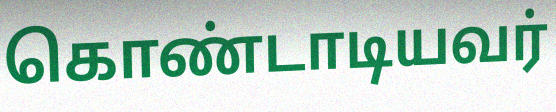
கொண்டாடியவர்